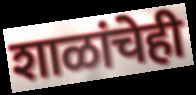
शाळांचेही